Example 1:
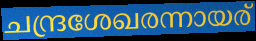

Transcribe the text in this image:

ചന്ദ്രശേഖരന്നായര്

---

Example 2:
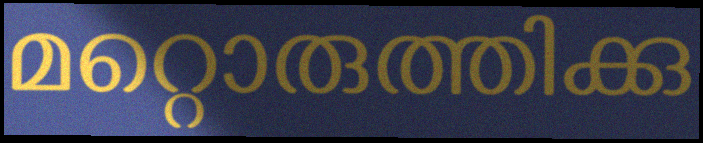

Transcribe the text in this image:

മറ്റൊരുത്തിക്കു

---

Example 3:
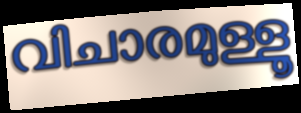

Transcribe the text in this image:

വിചാരമുള്ളൂ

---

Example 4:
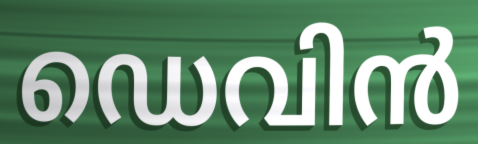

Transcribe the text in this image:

ഡെവിൻ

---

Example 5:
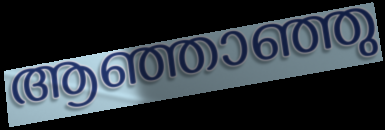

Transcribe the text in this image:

ആഞ്ഞാഞ്ഞു